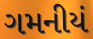
ગમનીયં